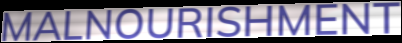
MALNOURISHMENT